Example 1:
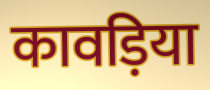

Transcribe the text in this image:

कावड़िया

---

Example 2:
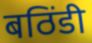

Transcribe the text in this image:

बठिंडी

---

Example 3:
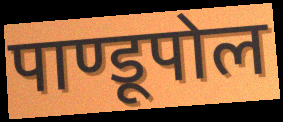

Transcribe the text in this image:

पाण्डूपोल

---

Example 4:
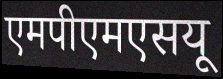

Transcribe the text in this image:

एमपीएमएसयू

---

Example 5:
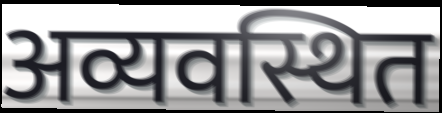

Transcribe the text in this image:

अव्यवस्थित